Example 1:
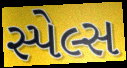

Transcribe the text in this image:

સ્પેલ્સ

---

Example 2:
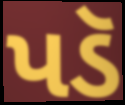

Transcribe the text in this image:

પડૅ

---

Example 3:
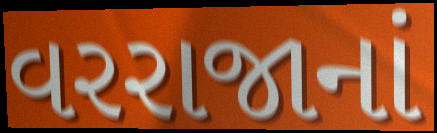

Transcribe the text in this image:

વરરાજાનાં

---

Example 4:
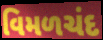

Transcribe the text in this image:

વિમળચંદ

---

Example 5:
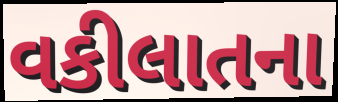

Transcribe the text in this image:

વકીલાતના